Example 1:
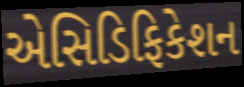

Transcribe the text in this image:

એસિડિફિકેશન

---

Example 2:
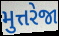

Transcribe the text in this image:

મુત્તરેજા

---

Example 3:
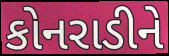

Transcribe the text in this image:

કોનરાડીને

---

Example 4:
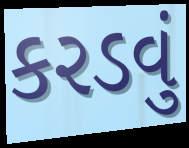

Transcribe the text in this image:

કરડવું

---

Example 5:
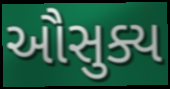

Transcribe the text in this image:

ઔસુક્ય